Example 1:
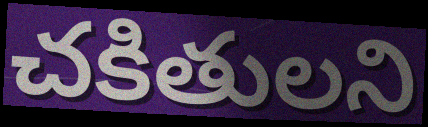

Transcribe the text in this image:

చకితులని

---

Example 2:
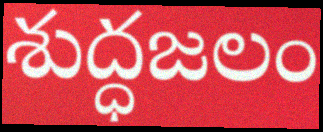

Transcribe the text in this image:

శుద్ధజలం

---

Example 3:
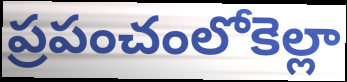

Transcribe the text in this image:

ప్రపంచంలోకెల్లా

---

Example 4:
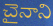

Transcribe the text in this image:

చైనాని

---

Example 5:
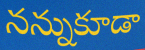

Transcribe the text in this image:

నన్నుకూడా